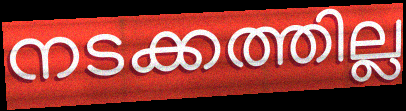
നടക്കത്തില്ല